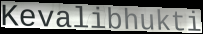
Kevalibhukti